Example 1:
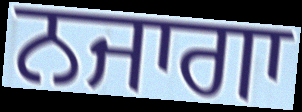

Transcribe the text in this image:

ਨਜਾਗਾ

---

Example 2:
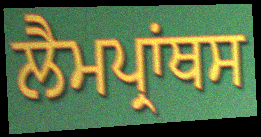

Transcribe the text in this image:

ਲੈਮਪ੍ਰਾਂਥਸ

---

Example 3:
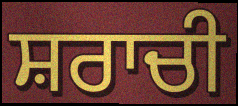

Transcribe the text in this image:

ਸ਼ਰਾਚੀ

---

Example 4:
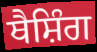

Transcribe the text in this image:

ਥੈਸ਼ਿੰਗ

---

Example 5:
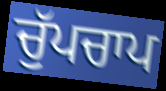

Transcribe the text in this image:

ਚੁੱਪਚਾਪ